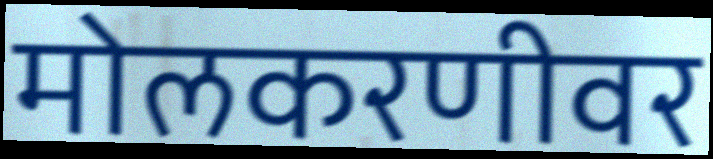
मोलकरणीवर